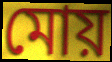
মোয়